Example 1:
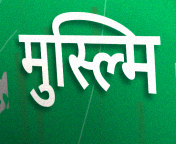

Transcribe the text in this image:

मुस्ल्मि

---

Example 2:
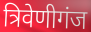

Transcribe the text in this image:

त्रिवेणीगंज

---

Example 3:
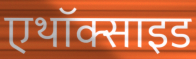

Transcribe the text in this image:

एथॉक्साइड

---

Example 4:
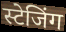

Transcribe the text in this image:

स्टेजिंग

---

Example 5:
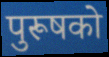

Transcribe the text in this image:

पुरूषको